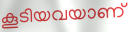
കൂടിയവയാണ്